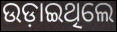
ଉଡ଼ାଇଥିଲେ